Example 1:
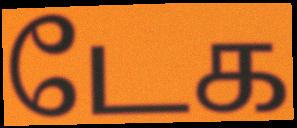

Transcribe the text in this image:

டேக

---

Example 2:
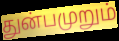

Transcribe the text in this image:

துன்பமுறும்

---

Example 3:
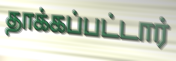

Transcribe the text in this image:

தாக்கப்பட்டார்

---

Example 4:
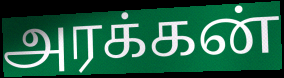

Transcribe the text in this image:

அரக்கன்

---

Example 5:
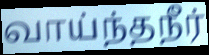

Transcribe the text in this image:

வாய்ந்தநீர்